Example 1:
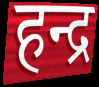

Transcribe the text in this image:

हन्द्र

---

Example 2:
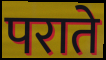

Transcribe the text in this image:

पराते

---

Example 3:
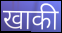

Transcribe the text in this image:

खाकी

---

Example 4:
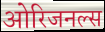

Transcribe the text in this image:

ओरिजनल्स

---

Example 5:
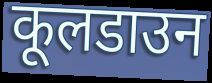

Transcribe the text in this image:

कूलडाउन